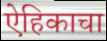
ऐहिकाचा